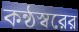
কন্ঠস্বরের